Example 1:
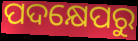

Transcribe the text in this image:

ପଦକ୍ଷେପରୁ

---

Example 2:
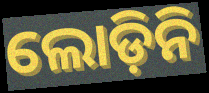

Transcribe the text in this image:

ଲୋଡ଼ିନି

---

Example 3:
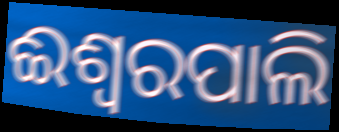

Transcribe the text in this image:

ଈଶ୍ୱରପାଲି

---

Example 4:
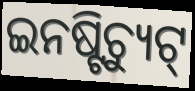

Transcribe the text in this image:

ଇନଷ୍ଟିଚ୍ୟୁଟ୍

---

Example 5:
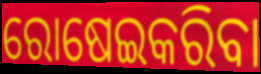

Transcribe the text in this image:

ରୋଷେଇକରିବା